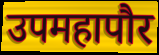
उपमहापौर